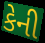
કેની